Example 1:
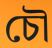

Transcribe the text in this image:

চৌ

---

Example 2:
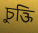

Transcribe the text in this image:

চুক্তি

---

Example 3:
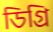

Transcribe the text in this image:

ডিগ্ৰি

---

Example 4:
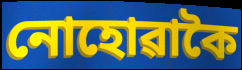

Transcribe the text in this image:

নোহোৱাকৈ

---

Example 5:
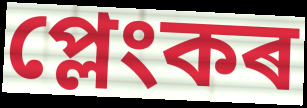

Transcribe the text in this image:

প্লেংকৰ